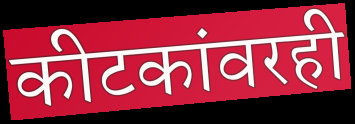
कीटकांवरही